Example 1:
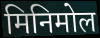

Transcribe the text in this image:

मिनिमोल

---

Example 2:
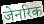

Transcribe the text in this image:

जेनरिक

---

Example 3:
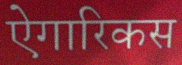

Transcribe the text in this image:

ऐगारिकस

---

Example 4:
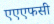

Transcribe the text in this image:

एएएफसी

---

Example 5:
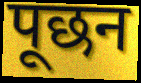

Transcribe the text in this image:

पूछन